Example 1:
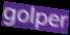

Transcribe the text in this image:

golper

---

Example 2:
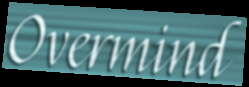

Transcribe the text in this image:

Overmind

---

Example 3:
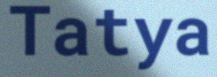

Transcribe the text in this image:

Tatya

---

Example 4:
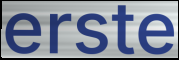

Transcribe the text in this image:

erste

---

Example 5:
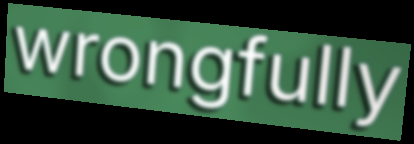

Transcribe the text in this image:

wrongfully